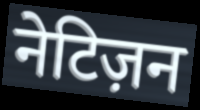
नेटिज़न